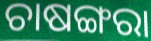
ଚାଷଙ୍ଗରା